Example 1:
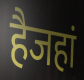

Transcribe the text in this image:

हैजहां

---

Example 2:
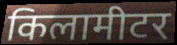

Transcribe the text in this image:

किलामीटर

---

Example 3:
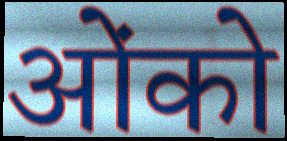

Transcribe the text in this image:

ओंको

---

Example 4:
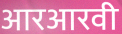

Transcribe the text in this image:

आरआरवी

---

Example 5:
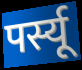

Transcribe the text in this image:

पर्स्यू